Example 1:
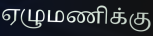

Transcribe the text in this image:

ஏழுமணிக்கு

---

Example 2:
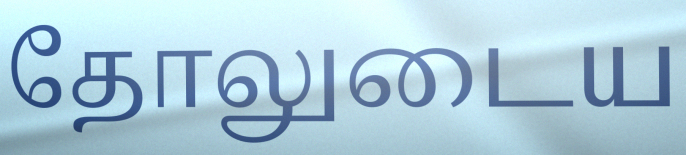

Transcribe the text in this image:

தோலுடைய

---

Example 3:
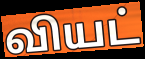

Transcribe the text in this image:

வியட்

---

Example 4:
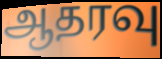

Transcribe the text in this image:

ஆதரவு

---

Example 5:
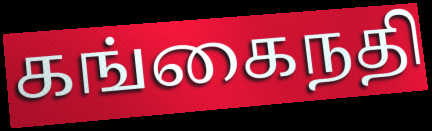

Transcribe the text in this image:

கங்கைநதி